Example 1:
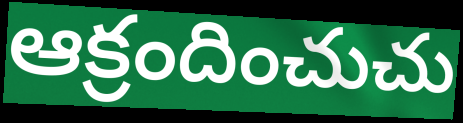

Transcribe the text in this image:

ఆక్రందించుచు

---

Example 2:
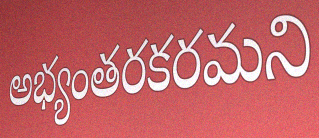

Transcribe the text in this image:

అభ్యంతరకరమని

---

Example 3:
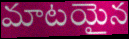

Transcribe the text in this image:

మాటయైన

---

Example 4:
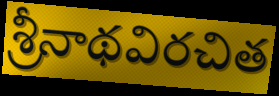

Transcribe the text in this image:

శ్రీనాథవిరచిత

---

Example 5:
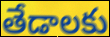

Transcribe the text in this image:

తేడాలకు